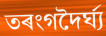
তৰংগদৈৰ্ঘ্য